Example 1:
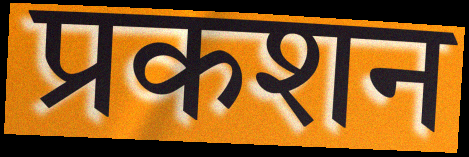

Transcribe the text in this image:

प्रकशन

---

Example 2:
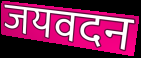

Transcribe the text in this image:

जयवदन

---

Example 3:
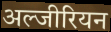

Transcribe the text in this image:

अल्जीरियन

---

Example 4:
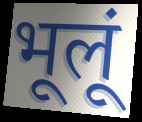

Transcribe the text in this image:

भूलूं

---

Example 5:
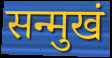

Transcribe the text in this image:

सन्मुखं